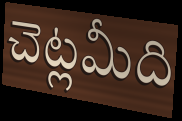
చెట్లమీది